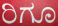
ರಿಗೂ